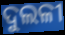
ଦୁଲଳୀ